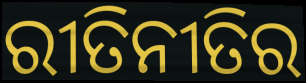
ରୀତିନୀତିର